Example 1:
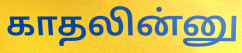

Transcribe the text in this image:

காதலின்னு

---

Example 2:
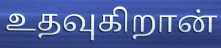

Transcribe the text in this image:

உதவுகிறான்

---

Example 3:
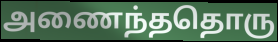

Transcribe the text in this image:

அணைந்ததொரு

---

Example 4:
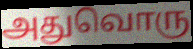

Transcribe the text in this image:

அதுவொரு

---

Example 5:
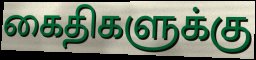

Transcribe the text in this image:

கைதிகளுக்கு